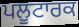
ਪਲੂਟਾਰਕ